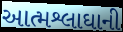
આત્મશ્લાઘાની